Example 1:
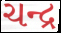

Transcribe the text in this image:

ચન્દ્ર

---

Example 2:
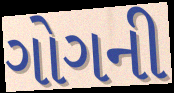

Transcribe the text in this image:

ગોગની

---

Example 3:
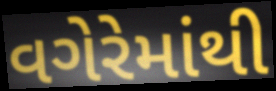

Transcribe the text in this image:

વગેરેમાંથી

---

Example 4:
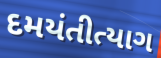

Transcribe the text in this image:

દમયંતીત્યાગ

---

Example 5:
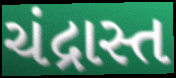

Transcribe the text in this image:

ચંદ્રાસ્ત